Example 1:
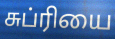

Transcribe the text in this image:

சுப்ரியை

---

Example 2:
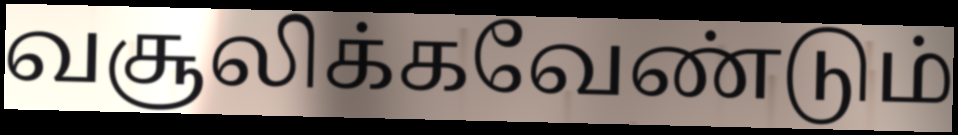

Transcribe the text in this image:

வசூலிக்கவேண்டும்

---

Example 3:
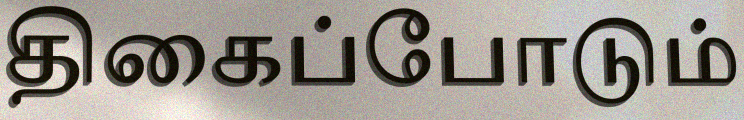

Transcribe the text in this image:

திகைப்போடும்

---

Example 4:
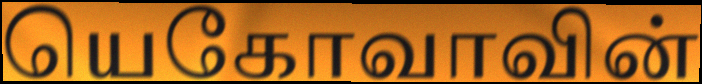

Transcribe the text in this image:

யெகோவாவின்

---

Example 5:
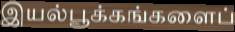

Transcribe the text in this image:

இயல்பூக்கங்களைப்